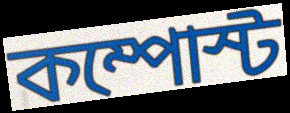
কম্পোস্ট